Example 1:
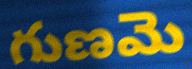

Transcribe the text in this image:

గుణమె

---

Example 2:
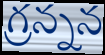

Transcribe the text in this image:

గ్రన్నన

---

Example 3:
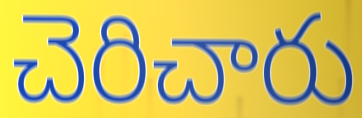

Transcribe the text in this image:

చెరిచారు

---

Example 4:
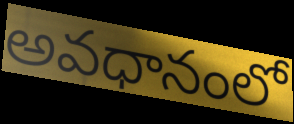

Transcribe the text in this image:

అవధానంలో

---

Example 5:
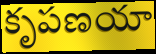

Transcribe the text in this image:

కృపణయా